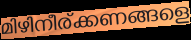
മിഴിനീര്ക്കണങ്ങളെ